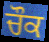
ਚੌਕ